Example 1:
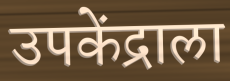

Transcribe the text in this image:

उपकेंद्राला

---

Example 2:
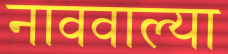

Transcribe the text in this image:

नाववाल्या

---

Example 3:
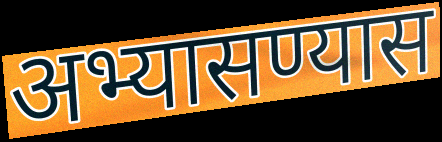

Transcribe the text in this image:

अभ्यासण्यास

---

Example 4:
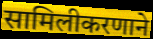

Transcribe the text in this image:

सामिलीकरणाने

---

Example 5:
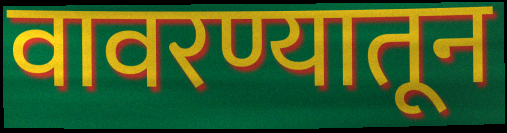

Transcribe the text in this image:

वावरण्यातून